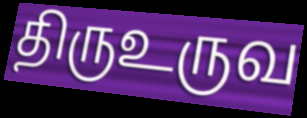
திருஉருவ